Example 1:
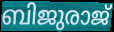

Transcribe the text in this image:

ബിജുരാജ്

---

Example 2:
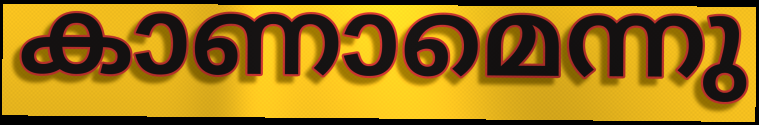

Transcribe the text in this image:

കാണാമെന്നു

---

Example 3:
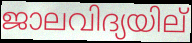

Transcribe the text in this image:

ജാലവിദ്യയില്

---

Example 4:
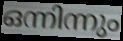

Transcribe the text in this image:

ഒന്നിന്നും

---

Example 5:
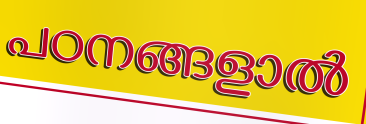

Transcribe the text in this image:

പഠനങ്ങളാൽ